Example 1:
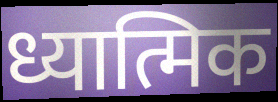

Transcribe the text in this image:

ध्यात्मिक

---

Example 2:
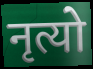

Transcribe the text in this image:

नृत्यो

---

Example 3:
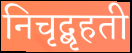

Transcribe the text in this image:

निचृद्बृहती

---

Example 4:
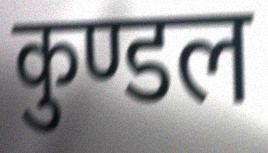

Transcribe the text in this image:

कुण्डल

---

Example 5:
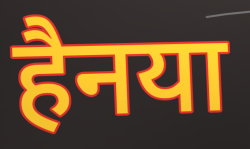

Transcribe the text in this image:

हैनया